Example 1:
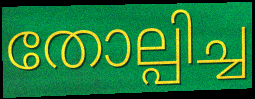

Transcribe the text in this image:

തോല്പിച്ച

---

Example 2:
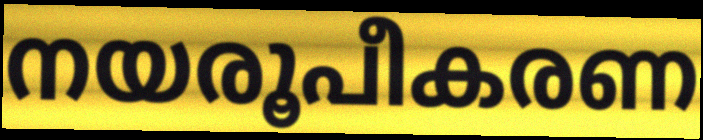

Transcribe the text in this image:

നയരൂപീകരണ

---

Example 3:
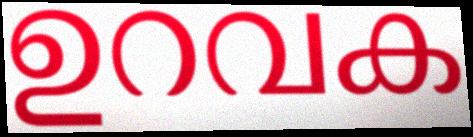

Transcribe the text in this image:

ഉറവക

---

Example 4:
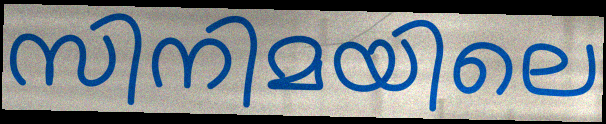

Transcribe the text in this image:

സിനിമയിലെ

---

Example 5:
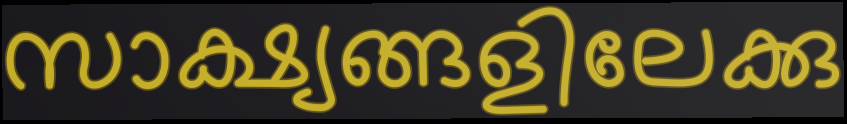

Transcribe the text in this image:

സാക്ഷ്യങ്ങളിലേക്കു